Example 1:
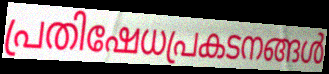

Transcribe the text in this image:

പ്രതിഷേധപ്രകടനങ്ങൾ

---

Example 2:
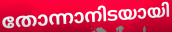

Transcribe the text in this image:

തോന്നാനിടയായി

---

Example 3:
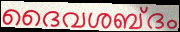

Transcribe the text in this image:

ദൈവശബ്ദം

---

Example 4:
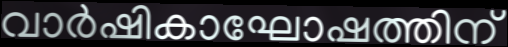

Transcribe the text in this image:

വാർഷികാഘോഷത്തിന്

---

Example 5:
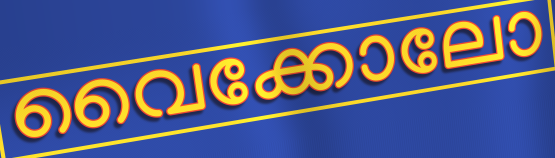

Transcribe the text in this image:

വൈക്കോലോ